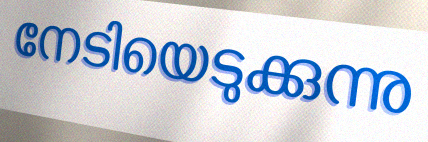
നേടിയെടുക്കുന്നു